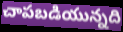
చాపబడియున్నది